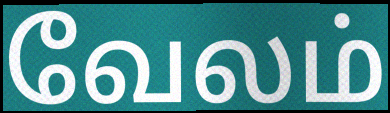
வேலம்